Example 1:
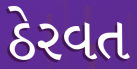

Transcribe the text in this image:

ઠેરવત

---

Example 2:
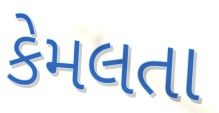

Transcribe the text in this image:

કેમલતા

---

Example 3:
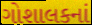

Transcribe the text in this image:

ગોશાલકનાં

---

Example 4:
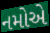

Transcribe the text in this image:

નમોએ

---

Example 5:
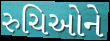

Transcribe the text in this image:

રુચિઓને